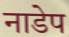
नाडेप